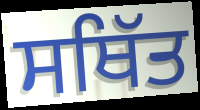
ਸਥਿੱਤ